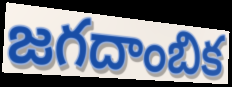
జగదాంబిక